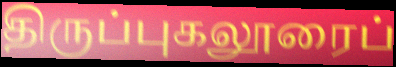
திருப்புகலூரைப்